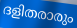
ദളിതരാരും